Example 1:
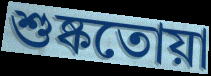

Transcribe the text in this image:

শুষ্কতোয়া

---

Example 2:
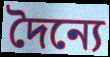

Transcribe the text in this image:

দৈন্যে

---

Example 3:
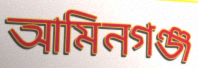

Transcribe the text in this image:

আমিনগঞ্জ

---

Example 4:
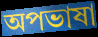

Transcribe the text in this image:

অপভাষা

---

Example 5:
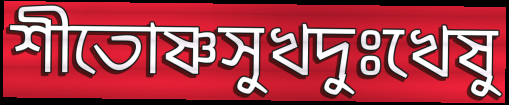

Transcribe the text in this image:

শীতোষ্ণসুখদুঃখেষু